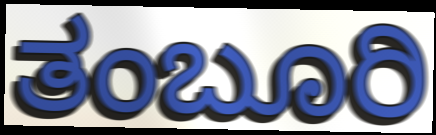
ತಂಬೂರಿ